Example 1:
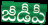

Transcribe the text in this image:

జీడీపీ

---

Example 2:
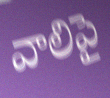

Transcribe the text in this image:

వాలిపై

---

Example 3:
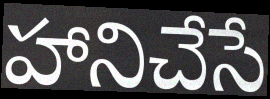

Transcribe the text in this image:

హానిచేసే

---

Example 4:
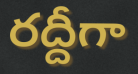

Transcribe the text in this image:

రద్దీగా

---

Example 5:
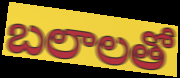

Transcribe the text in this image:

బలాలతో